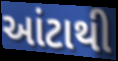
આંટાથી